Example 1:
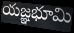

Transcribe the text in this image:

యజ్ఞభూమి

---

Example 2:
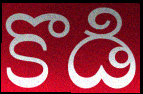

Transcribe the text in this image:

కొడి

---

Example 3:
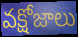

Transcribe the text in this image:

వక్షోజాలు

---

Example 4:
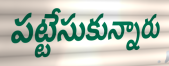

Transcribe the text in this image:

పట్టేసుకున్నారు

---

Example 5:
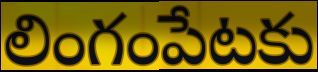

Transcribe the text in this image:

లింగంపేటకు